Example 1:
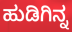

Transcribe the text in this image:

ಹುಡಿಗಿನ್ನ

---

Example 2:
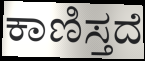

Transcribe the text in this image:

ಕಾಣಿಸ್ತದೆ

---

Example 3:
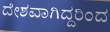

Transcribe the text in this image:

ದೇಶವಾಗಿದ್ದರಿಂದ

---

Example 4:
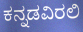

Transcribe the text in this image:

ಕನ್ನಡವಿರಲಿ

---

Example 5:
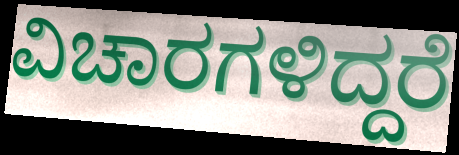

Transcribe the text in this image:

ವಿಚಾರಗಳಿದ್ದರೆ